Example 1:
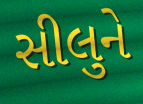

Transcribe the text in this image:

સીલુને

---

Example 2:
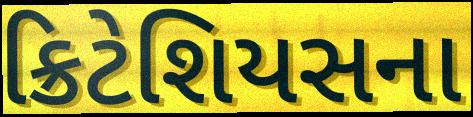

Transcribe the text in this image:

ક્રિટેશિયસના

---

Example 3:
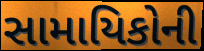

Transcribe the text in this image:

સામાયિકોની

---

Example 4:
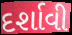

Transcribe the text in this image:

દર્શાવી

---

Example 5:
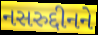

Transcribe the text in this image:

નસરુદ્દીનને